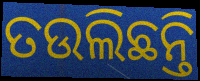
ତଉଲିଛନ୍ତି